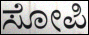
ಸೋಪಿ